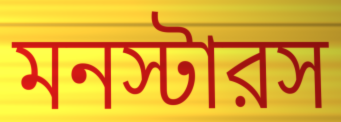
মনস্টারস